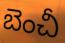
బెంచీ